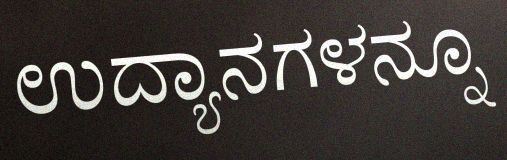
ಉದ್ಯಾನಗಳನ್ನೂ